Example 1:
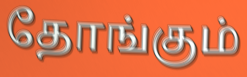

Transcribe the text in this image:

தோங்கும்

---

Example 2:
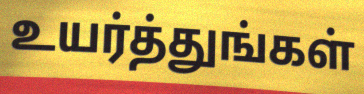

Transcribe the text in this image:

உயர்த்துங்கள்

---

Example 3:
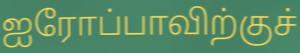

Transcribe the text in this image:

ஐரோப்பாவிற்குச்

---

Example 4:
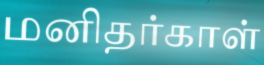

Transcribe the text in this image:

மனிதர்காள்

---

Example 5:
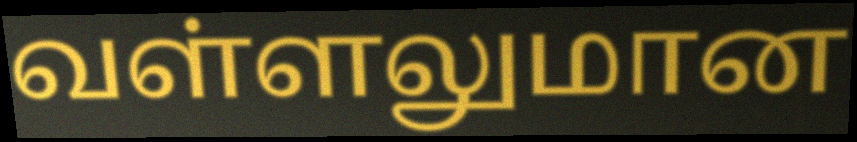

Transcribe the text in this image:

வள்ளலுமான